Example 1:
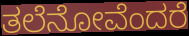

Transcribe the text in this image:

ತಲೆನೋವೆಂದರೆ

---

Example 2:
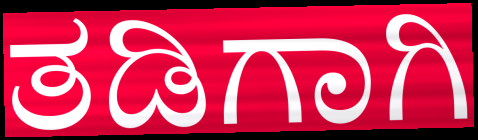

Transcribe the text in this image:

ತಡಿಗಾಗಿ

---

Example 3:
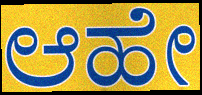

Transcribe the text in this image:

ಆಹೇ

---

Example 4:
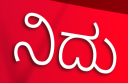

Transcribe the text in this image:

ನಿದು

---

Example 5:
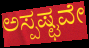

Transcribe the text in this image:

ಅಸ್ಪಷ್ಟವೇ